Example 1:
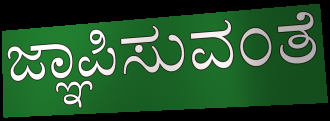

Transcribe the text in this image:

ಜ್ಞಾಪಿಸುವಂತೆ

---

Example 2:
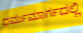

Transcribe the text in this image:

ಧರ್ಮಮಾರ್ಗದಲ್ಲಿ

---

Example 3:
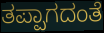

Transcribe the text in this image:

ತಪ್ಪಾಗದಂತೆ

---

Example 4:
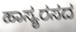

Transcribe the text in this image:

ಹಾಸ್ಯರಸದ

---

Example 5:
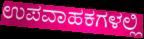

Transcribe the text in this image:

ಉಪವಾಹಕಗಳಲ್ಲಿ